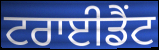
ਟਰਾਈਡੈਂਟ